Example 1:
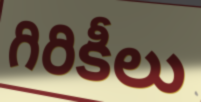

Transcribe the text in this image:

గిరికీలు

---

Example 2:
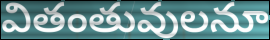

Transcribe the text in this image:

వితంతువులనూ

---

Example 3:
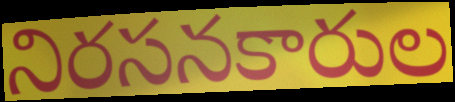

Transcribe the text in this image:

నిరసనకారుల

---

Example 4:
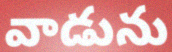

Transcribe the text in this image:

వాడును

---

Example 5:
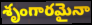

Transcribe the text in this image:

శృంగారమైనా